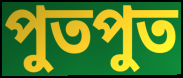
পুতপুত